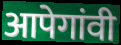
आपेगांवी